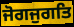
ਜੋਗਜੁਗਤਿ